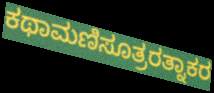
ಕಥಾಮಣಿಸೂತ್ರರತ್ನಾಕರ